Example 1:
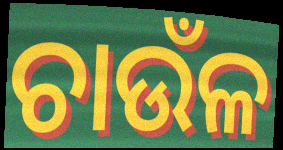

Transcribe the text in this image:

ଚାଉଁଳ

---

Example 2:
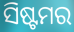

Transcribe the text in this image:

ସିଷ୍ଟମର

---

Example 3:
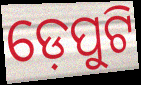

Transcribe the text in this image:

ଡ଼େପୁଟି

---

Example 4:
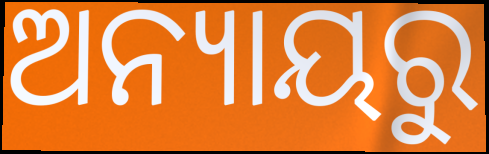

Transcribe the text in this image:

ଅନ୍ୟାୟରୁ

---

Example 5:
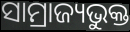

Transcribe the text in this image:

ସାମ୍ରାଜ୍ୟଭୁକ୍ତ